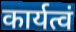
कार्यत्वं